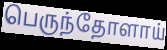
பெருந்தோளாய்